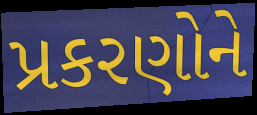
પ્રકરણોને